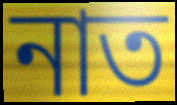
নাত